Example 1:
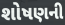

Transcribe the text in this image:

શોષણની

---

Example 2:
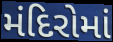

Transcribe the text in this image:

મંદિરોમાં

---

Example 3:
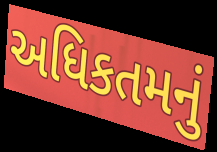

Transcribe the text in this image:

અધિકતમનું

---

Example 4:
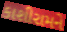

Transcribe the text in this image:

કાશીરામને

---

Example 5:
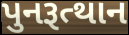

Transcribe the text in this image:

પુનરૂત્થાન